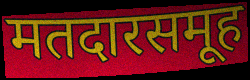
मतदारसमूह